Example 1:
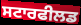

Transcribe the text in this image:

ਸਟਾਰਫੀਲਡ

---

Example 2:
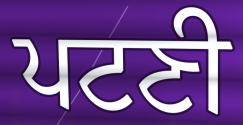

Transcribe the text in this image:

ਪਟਣੀ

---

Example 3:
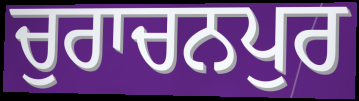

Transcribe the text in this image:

ਚੁਰਾਚਨਪੁਰ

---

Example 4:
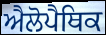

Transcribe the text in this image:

ਐਲੋਪੈਥਿਕ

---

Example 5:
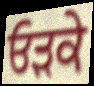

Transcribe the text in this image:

ਓੜਕੇ